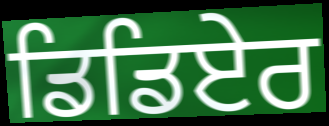
ਡਿਡਿਏਰ